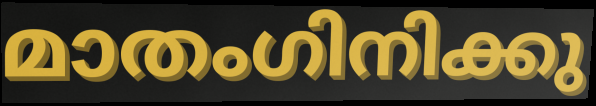
മാതംഗിനിക്കു